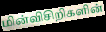
மின்விசிறிகளின்